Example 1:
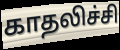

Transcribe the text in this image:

காதலிச்சி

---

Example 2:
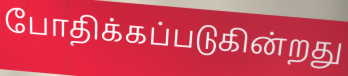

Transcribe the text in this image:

போதிக்கப்படுகின்றது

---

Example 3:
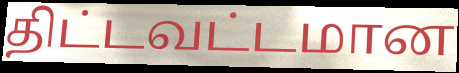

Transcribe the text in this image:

திட்டவட்டமான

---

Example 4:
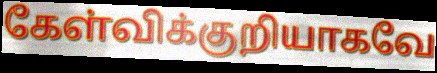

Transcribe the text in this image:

கேள்விக்குறியாகவே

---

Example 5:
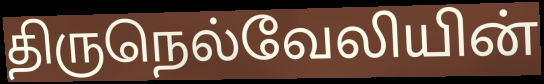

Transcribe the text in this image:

திருநெல்வேலியின்